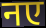
नए